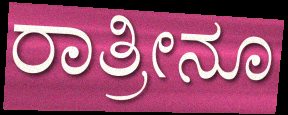
ರಾತ್ರೀನೂ